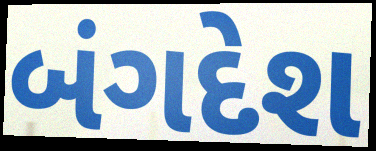
બંગદેશ